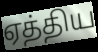
ஏத்திய